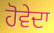
ਹੋਵੇਦਾ